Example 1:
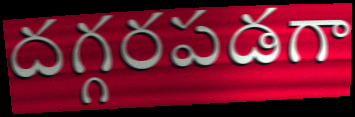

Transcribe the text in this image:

దగ్గరపడగా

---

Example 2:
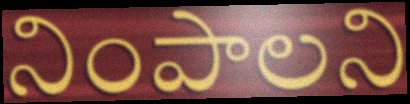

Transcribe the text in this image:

నింపాలని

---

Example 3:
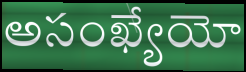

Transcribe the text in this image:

అసంఖ్యేయో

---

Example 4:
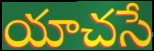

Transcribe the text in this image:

యాచసే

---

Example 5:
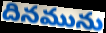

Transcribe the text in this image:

దినమును